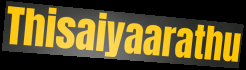
Thisaiyaarathu